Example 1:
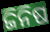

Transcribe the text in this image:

ଜିନିଷ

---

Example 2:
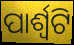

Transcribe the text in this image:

ପାର୍ଶ୍ଵଟି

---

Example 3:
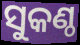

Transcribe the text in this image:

ସୁକଣ୍ଠ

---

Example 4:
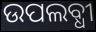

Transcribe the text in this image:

ଉପଲବ୍ଧୀ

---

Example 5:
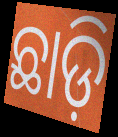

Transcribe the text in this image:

ଛାଡ଼ି